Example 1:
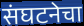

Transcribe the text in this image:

संघटनेचा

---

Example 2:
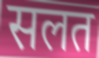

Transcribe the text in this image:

सलत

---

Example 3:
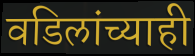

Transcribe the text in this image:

वडिलांच्याही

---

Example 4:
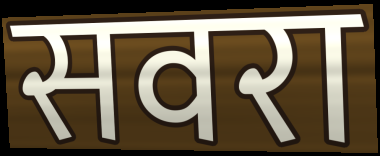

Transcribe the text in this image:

सवरा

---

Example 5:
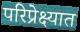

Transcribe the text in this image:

परिप्रेक्ष्यात